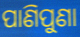
ପାଣିପୁଣା